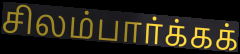
சிலம்பார்க்கக்